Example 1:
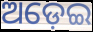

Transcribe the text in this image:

ଅଡ଼େଇ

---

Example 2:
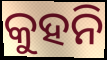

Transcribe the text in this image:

କୁହନି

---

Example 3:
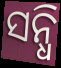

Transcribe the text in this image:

ସନ୍ଧି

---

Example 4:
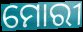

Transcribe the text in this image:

ମୋରୀ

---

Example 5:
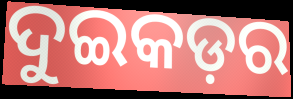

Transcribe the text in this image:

ଦୁଇକଡ଼ର